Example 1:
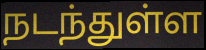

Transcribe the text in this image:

நடந்துள்ள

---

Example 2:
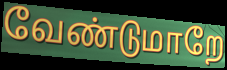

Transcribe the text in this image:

வேண்டுமாறே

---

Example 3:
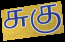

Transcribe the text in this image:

சுகு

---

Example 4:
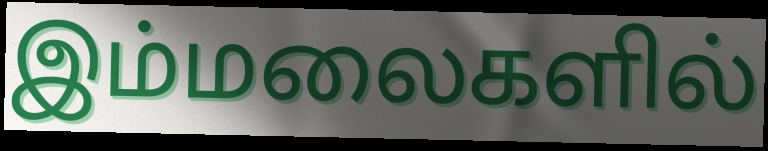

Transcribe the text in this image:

இம்மலைகளில்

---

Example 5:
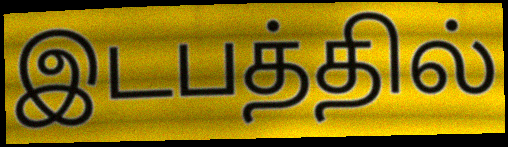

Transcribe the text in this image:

இடபத்தில்